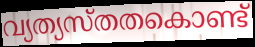
വ്യത്യസ്തതകൊണ്ട്